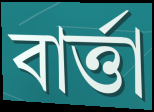
বার্ত্তা